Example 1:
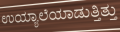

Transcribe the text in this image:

ಉಯ್ಯಾಲೆಯಾಡುತ್ತಿತ್ತು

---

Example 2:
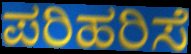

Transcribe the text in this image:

ಪರಿಹರಿಸೆ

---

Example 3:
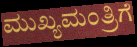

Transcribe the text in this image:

ಮುಖ್ಯಮಂತ್ರಿಗೆ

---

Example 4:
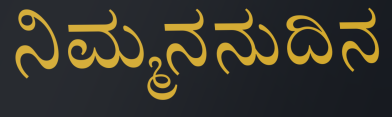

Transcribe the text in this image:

ನಿಮ್ಮನನುದಿನ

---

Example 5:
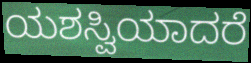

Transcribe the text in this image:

ಯಶಸ್ವಿಯಾದರೆ